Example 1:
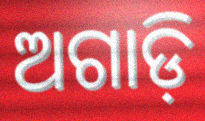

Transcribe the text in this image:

ଅଗାଡ଼ି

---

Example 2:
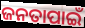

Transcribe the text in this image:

ଜନତାପାଇଁ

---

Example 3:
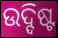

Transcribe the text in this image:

ଉଦ୍ଦିଷ୍ଟ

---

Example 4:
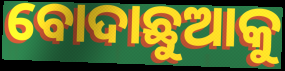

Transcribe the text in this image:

ବୋଦାଛୁଆକୁ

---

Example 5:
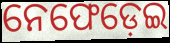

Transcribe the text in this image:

ନେଫେଡ଼େଇ